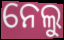
ନେଲୁ